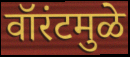
वॉरंटमुळे